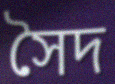
সৈদ